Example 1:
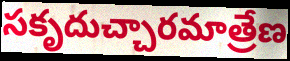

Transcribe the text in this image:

సకృదుచ్చారమాత్రేణ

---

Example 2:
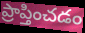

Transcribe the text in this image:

ప్రాప్తించడం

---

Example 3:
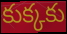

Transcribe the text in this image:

కుక్కకు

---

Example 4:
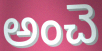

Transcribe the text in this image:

అంచె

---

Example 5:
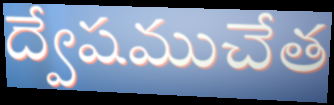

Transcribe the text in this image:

ద్వేషముచేత